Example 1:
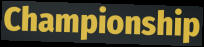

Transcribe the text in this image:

Championship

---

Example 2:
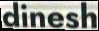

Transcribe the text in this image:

dinesh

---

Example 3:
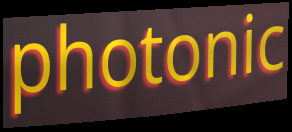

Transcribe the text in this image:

photonic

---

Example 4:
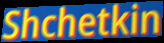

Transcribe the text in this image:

Shchetkin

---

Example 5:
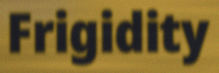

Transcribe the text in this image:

Frigidity